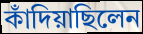
কাঁদিয়াছিলেন